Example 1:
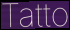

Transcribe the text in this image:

Tatto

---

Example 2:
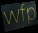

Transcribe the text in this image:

wfp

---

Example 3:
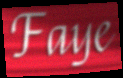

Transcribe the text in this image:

Faye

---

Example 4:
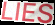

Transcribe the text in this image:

LIES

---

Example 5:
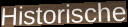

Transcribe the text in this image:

Historische